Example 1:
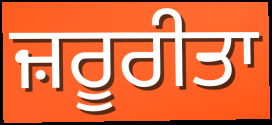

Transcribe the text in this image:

ਜ਼ਰੂਰੀਤਾ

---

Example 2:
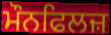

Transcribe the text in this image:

ਮੌਨਫਿਲਜ਼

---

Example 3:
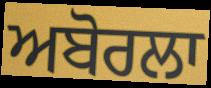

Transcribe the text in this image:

ਅਬੋਰਲਾ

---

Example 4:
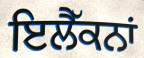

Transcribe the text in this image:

ਇਲੈੱਕਨਾਂ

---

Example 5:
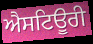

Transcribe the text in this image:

ਐਸਟਿਊਰੀ